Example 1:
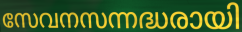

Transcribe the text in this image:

സേവനസന്നദ്ധരായി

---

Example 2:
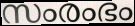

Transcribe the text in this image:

സംരംഭം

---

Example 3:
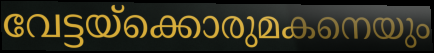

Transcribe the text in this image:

വേട്ടയ്ക്കൊരുമകനെയും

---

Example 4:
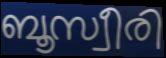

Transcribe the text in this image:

ബൂസ്വീരി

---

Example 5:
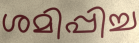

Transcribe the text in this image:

ശമിപ്പിച്ച